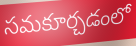
సమకూర్చడంలో